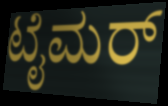
ಟೈಮರ್